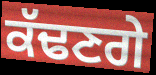
ਕੱਢਣਗੇ